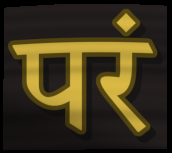
परं